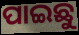
ପାଇଛୁ